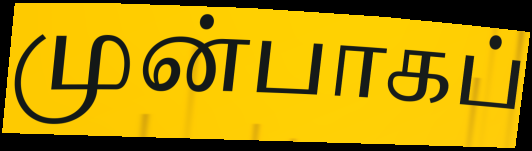
முன்பாகப்